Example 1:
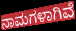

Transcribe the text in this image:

ನಾಮಗಳಾಗಿವೆ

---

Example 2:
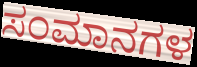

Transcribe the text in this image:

ಸಂಮಾನಗಳ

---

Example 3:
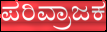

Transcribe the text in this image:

ಪರಿವ್ರಾಜಕ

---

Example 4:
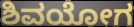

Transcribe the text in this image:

ಶಿವಯೋಗ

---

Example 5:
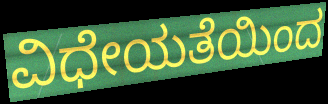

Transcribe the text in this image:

ವಿಧೇಯತೆಯಿಂದ